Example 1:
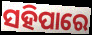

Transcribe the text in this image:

ସହିପାରେ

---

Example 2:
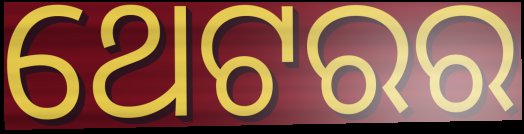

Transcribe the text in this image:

ଥେଟରର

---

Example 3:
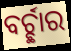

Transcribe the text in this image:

ବର୍ଚ୍ଛାର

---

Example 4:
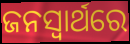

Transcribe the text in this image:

ଜନସ୍ୱାର୍ଥରେ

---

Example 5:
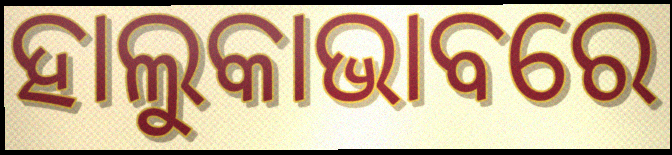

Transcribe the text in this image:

ହାଲୁକାଭାବରେ